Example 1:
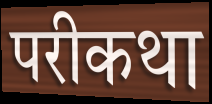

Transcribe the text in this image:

परीकथा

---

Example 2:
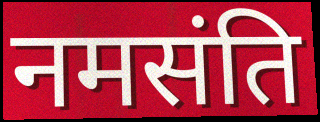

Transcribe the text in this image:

नमसंति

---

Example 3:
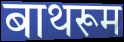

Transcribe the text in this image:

बाथरूम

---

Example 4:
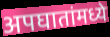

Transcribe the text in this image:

अपघातांमध्ये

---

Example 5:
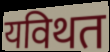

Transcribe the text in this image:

यविथत